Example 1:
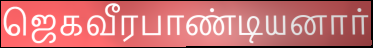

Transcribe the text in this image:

ஜெகவீரபாண்டியனார்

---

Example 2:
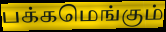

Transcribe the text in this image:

பக்கமெங்கும்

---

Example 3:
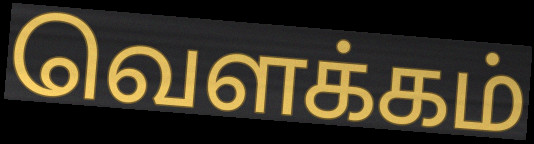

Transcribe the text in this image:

வெளக்கம்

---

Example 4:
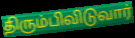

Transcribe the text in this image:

திரும்பிவிடுவார்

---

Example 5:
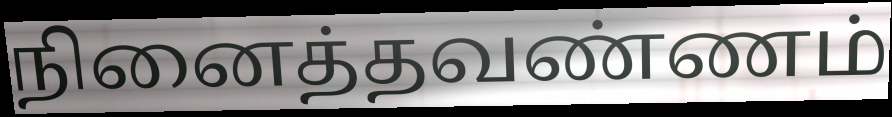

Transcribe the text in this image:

நினைத்தவண்ணம்